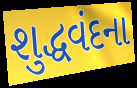
શુદ્ધવંદના